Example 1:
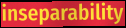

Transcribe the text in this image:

inseparability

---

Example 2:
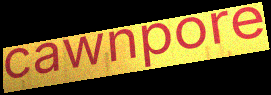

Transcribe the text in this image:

cawnpore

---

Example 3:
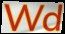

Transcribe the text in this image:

Wd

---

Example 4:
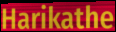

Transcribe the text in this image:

Harikathe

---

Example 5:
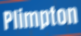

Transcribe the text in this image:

Plimpton